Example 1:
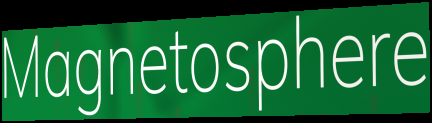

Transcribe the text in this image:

Magnetosphere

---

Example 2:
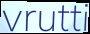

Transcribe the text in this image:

vrutti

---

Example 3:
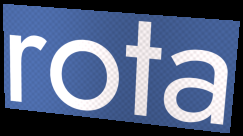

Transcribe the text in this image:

rota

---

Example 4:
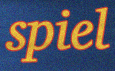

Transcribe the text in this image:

spiel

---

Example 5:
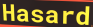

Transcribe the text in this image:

Hasard